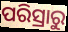
ପରିସ୍ରାରୁ